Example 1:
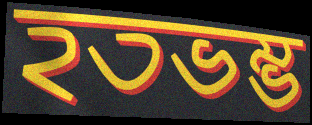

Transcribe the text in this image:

হতভম্ভ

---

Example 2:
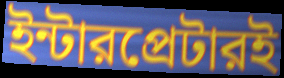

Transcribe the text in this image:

ইন্টারপ্রেটারই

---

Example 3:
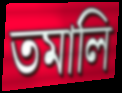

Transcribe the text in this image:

তমালি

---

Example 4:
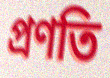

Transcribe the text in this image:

প্রণতি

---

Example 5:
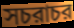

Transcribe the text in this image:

সচরাচর